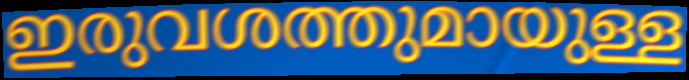
ഇരുവശത്തുമായുള്ള